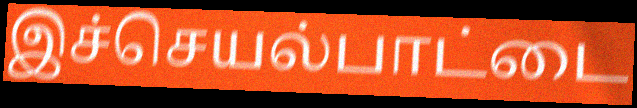
இச்செயல்பாட்டை